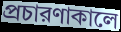
প্রচারণাকালে